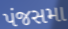
પંજસમા